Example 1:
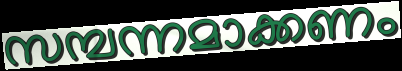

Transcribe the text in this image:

സമ്പന്നമാക്കണം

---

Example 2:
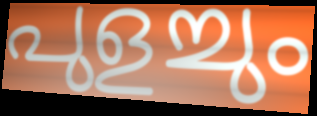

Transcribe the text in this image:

പുളച്ചും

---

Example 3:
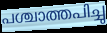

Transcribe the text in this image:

പശ്ചാത്തപിച്ചു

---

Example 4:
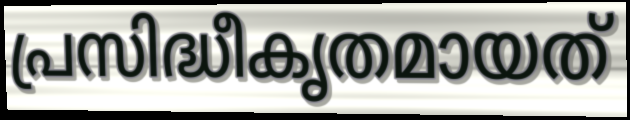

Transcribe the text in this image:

പ്രസിദ്ധീകൃതമായത്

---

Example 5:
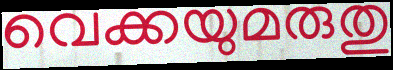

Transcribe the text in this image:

വെക്കയുമരുതു